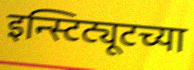
इन्स्टिट्यूटच्या